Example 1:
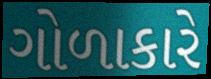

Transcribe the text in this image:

ગોળાકારે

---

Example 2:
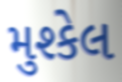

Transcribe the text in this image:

મુશ્કેલ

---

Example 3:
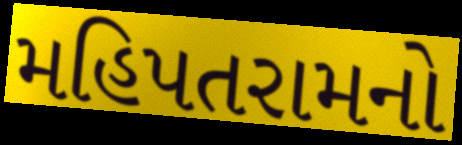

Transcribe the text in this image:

મહિપતરામનો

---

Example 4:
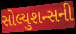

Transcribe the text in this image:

સોલ્યુશન્સની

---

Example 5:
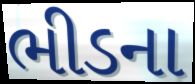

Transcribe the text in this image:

ભીડના